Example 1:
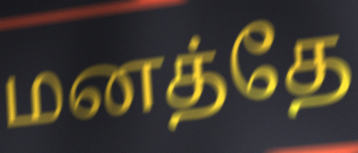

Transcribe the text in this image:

மனத்தே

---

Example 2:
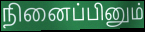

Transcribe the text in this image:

நினைப்பினும்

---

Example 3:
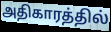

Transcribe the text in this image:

அதிகாரத்தில்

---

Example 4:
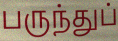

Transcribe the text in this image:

பருந்துப்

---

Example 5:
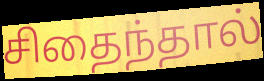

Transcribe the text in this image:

சிதைந்தால்